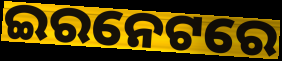
ଇରନେଟରେ